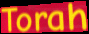
Torah